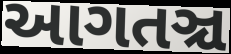
આગતઞ્ચ